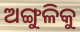
ଅଙ୍ଗୁଳିକୁ